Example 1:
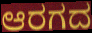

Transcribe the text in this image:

ಆರಗದ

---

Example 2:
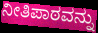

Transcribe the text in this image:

ನೀತಿಪಾಠವನ್ನು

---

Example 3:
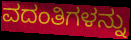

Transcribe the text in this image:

ವದಂತಿಗಳನ್ನು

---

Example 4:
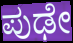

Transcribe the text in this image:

ಪುಢೇ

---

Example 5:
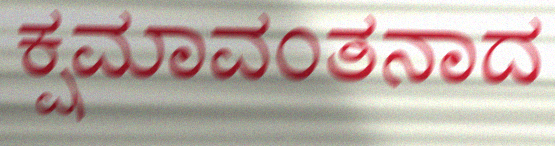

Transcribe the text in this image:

ಕ್ಷಮಾವಂತನಾದ